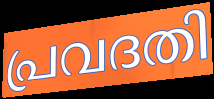
പ്രവദതി